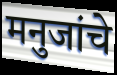
मनुजांचे